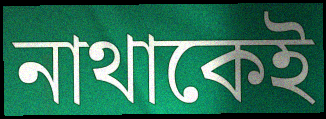
নাথাকেই